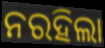
ନରହିଲା